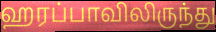
ஹரப்பாவிலிருந்து